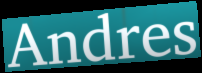
Andres